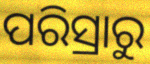
ପରିସ୍ରାରୁ